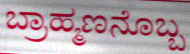
ಬ್ರಾಹ್ಮಣನೊಬ್ಬ